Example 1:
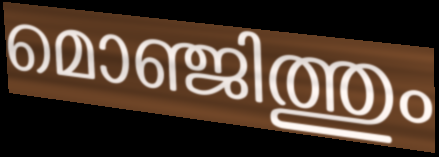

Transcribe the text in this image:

മൊഞ്ജിത്തും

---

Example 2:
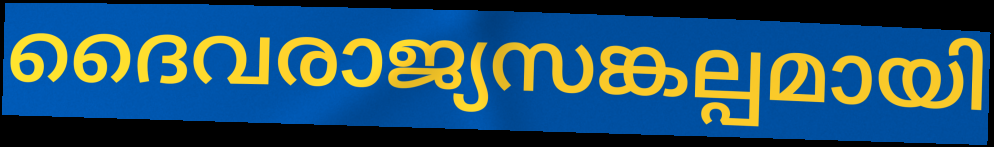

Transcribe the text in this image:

ദൈവരാജ്യസങ്കല്പമായി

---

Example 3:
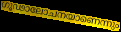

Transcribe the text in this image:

ഗൂഢാലോചനയാണെന്നും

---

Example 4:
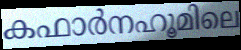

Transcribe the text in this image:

കഫാർനഹൂമിലെ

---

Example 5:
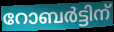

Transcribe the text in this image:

റോബർട്ടിന്